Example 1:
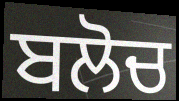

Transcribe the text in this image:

ਬਲੋਚ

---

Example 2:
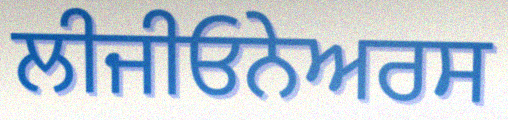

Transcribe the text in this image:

ਲੀਜੀਓਨੇਅਰਸ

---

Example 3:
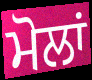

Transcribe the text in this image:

ਮੋਲਾਂ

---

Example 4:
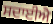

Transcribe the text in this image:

ਸਦਾਈਐ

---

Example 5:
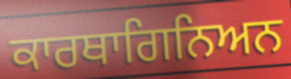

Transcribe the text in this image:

ਕਾਰਥਾਗਿਨਿਅਨ